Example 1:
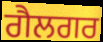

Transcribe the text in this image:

ਗੈਲਗਰ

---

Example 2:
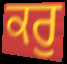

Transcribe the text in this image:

ਕਰੁ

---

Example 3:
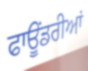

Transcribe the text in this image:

ਫਾਊਂਡਰੀਆਂ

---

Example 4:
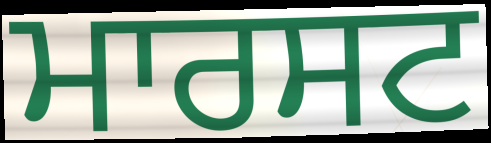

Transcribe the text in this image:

ਮਾਰਸਟ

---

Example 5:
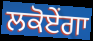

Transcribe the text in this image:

ਲਕੋਏਂਗਾ